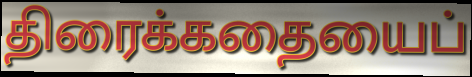
திரைக்கதையைப்